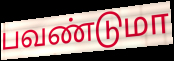
பவண்டுமா